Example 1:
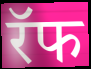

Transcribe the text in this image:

रॅफ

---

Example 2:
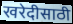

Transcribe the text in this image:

खरेदीसाठी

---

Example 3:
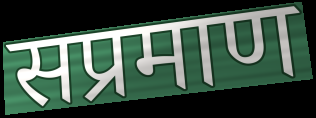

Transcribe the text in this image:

सप्रमाण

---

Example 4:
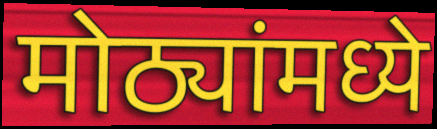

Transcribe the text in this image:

मोठ्यांमध्ये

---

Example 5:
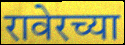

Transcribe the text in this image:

रावेरच्या